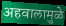
अहवालामुळे